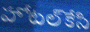
హోటల్‌కేసి